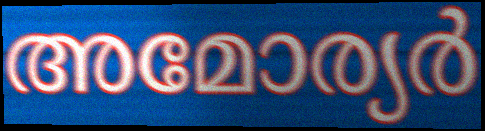
അമോര്യർ